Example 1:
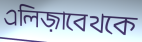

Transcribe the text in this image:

এলিজ়াবেথকে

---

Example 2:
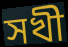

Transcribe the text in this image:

সখী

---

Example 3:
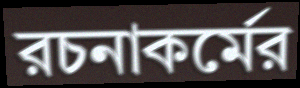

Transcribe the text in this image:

রচনাকর্মের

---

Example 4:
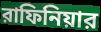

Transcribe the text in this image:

রাফিনিয়ার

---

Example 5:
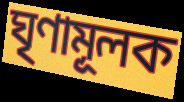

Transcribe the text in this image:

ঘৃণামূলক